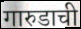
गारुडाची